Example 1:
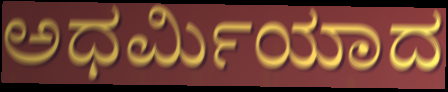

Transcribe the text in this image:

ಅಧರ್ಮಿಯಾದ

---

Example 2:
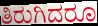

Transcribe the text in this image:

ತಿರುಗಿದರೂ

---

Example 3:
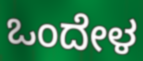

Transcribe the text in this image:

ಒಂದೇಳ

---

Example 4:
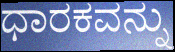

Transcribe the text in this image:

ಧಾರಕವನ್ನು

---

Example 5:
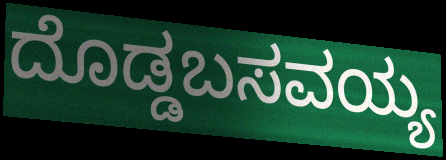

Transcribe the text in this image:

ದೊಡ್ಡಬಸವಯ್ಯ